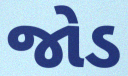
જોડ